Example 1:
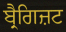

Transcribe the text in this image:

ਬ੍ਰੈਗਿਜ਼ਟ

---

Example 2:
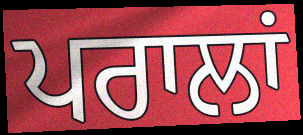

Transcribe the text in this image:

ਪਰਾਲਾਂ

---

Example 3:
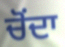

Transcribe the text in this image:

ਚੋਂਦਾ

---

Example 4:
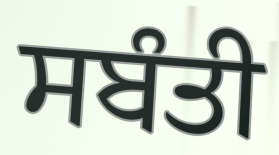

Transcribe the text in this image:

ਸਬੰਤੀ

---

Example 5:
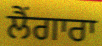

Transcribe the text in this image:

ਲੈਂਗਾਰਾ